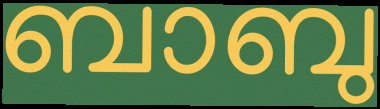
ബാബു